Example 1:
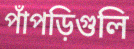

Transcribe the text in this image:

পাঁপড়িগুলি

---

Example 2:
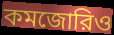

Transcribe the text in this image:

কমজোরিও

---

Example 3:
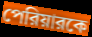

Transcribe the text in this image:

পেরিয়ারকে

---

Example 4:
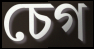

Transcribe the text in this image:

চেগ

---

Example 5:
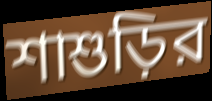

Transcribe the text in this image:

শাশুড়ির